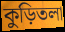
কুড়িতলা